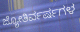
ಜ್ಯೋತಿರ್ವರ್ಷಗಳ